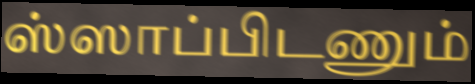
ஸ்ஸாப்பிடணும்